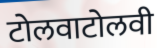
टोलवाटोलवी